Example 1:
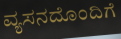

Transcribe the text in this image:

ವ್ಯಸನದೊಂದಿಗೆ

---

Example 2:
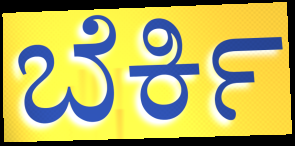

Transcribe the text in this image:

ಬೆರ್ಕಿ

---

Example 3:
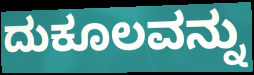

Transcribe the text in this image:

ದುಕೂಲವನ್ನು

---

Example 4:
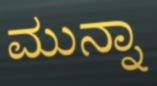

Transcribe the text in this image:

ಮುನ್ನಾ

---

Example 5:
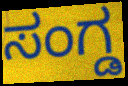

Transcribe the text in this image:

ಸಂಗ್ಡ